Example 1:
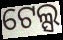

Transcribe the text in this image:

ଟେଲ୍ସ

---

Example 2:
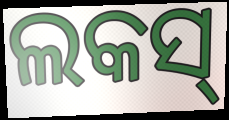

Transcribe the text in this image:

ଲକସ୍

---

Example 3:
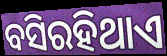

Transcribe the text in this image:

ବସିରହିଥାଏ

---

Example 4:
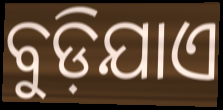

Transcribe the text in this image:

ବୁଡ଼ିଯାଏ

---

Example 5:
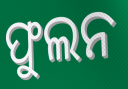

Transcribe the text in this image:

ଫୁଲନ